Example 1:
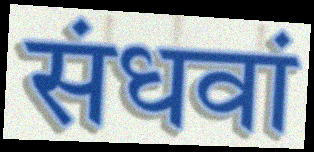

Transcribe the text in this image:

संधवां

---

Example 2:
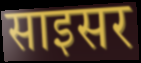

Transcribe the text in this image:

साइसर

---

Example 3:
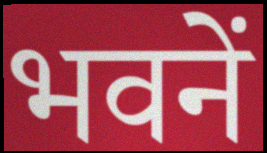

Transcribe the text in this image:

भवनें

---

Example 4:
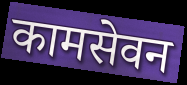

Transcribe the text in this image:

कामसेवन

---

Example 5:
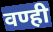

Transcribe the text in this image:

वण्ही